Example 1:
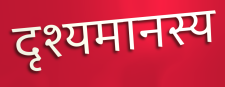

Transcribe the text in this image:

दृश्यमानस्य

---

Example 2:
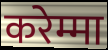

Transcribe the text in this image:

करेम्मा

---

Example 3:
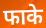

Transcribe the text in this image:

फाके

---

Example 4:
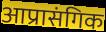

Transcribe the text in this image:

आप्रासंगिक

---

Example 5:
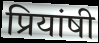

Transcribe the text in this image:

प्रियांषी